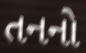
તનનો